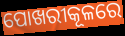
ପୋଖରୀକୂଳରେ